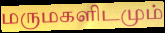
மருமகளிடமும்